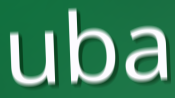
uba